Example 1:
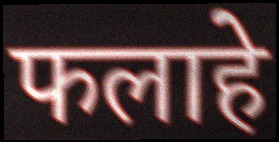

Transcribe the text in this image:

फलाहे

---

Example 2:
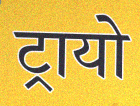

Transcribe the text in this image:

ट्रायो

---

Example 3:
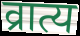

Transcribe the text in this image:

व्रात्य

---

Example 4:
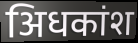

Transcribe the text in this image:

अिधकांश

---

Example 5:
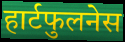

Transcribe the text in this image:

हार्टफुलनेस